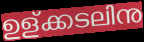
ഉള്ക്കടലിനു